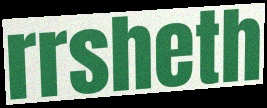
rrsheth